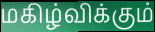
மகிழ்விக்கும்